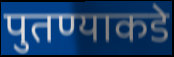
पुतण्याकडे